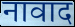
नावाद